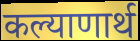
कल्याणार्थ